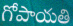
గోపాయతి